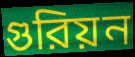
গুরিয়ন